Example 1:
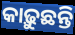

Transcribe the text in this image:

କାଢ଼ୁଛନ୍ତି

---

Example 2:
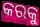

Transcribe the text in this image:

କରକୁ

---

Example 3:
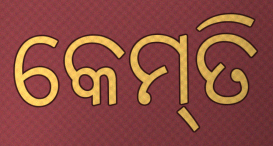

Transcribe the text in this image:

କେମ୍‍ତି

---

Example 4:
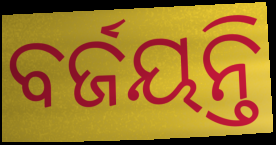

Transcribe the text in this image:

ବର୍ଜୟନ୍ତି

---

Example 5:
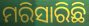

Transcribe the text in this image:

ମରିସାରିଛି